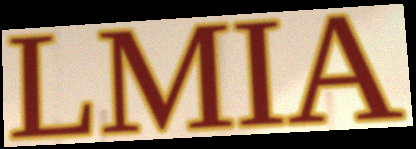
LMIA